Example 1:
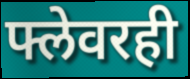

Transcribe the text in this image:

फ्लेवरही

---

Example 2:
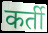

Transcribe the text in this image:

कर्ती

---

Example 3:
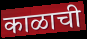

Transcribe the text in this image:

काळाची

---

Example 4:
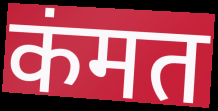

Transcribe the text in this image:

कंमत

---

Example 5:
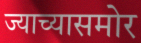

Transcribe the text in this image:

ज्याच्यासमोर